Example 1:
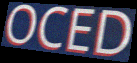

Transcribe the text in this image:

OCED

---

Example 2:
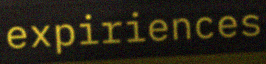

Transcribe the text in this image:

expiriences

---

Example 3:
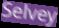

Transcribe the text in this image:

Selvey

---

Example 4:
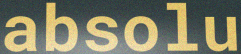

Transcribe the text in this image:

absolu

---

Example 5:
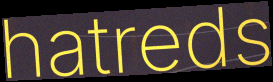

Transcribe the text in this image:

hatreds